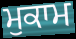
ਮੁਕਾਮ